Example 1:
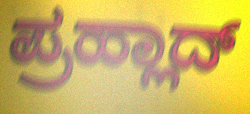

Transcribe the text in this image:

ಪ್ರಹ್ಲಾದ್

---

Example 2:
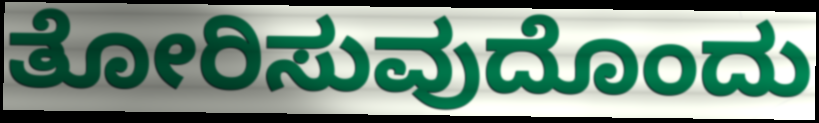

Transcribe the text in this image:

ತೋರಿಸುವುದೊಂದು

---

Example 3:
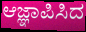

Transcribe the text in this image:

ಆಜ್ಞಾಪಿಸಿದ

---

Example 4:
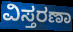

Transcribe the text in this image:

ವಿಸ್ತರಣಾ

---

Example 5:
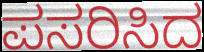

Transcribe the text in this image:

ಪಸರಿಸಿದ